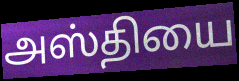
அஸ்தியை